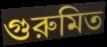
গুরুমিত